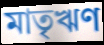
মাতৃঋণ